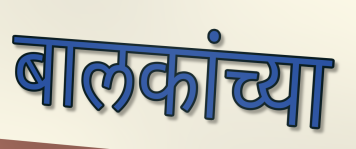
बालकांच्या